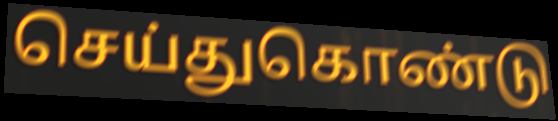
செய்துகொண்டு